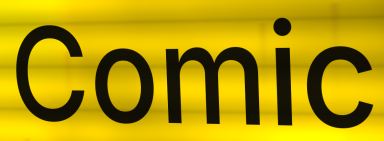
Comic